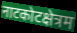
नाटकोटक्षेत्रम